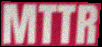
MTTR